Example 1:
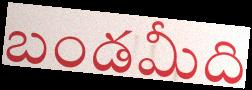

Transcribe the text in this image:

బండమీది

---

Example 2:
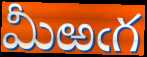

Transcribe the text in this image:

మీఱఁగ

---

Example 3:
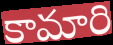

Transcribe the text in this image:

కామారి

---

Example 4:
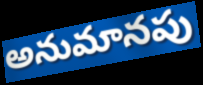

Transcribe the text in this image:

అనుమానపు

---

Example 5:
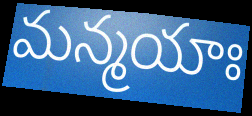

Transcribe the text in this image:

మన్మయాః